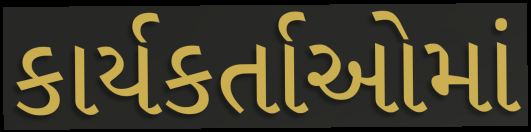
કાર્યકર્તાઓમાં